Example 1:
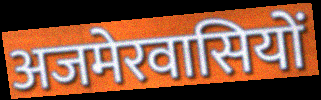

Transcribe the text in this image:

अजमेरवासियों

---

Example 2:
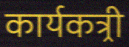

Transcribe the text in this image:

कार्यकत्र्री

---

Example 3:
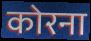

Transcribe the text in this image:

कोरना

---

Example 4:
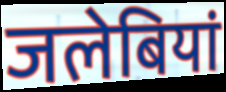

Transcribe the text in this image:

जलेबियां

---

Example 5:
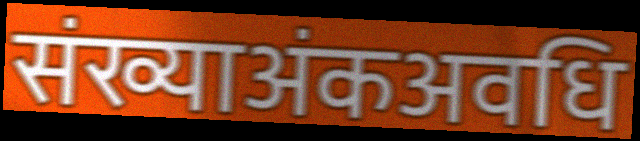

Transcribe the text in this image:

संख्याअंकअवधि